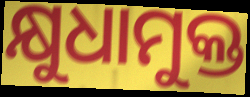
କ୍ଷୁଧାମୁକ୍ତ